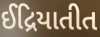
ઈદ્રિયાતીત